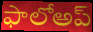
ఫాలోఅప్